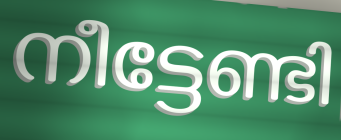
നീട്ടേണ്ടി